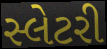
સ્લેટરી